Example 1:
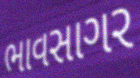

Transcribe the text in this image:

ભાવસાગર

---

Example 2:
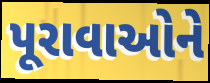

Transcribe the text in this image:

પૂરાવાઓને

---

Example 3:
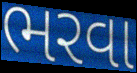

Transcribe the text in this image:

ભરવા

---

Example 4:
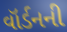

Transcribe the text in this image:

વૉર્ડનની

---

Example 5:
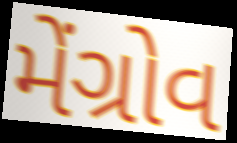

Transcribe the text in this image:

મેંગ્રોવ